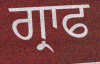
ਗ੍ਰਾਫ